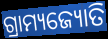
ଗ୍ରାମ୍ୟଜ୍ୟୋତି